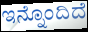
ಇನ್ನೊಂದಿದೆ